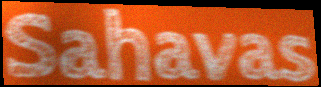
Sahavas